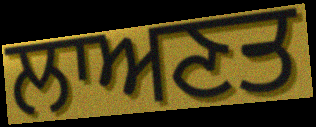
ਲਾਅਣਤ